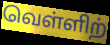
வெள்ளிற்